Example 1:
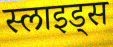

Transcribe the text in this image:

स्लाइड्स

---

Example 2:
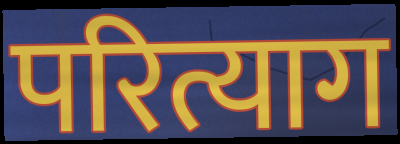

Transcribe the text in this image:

परित्याग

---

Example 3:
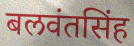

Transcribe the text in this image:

बलवंतसिंह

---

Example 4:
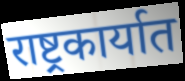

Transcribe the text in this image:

राष्ट्रकार्यात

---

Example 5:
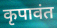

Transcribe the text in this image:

कृपावंत